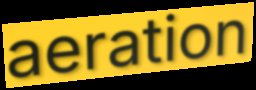
aeration